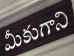
మీకుగాని